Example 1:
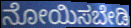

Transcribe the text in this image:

ನೋಯಿಸಬೇಡಿ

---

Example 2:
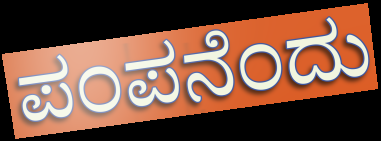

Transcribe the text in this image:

ಪಂಪನೆಂದು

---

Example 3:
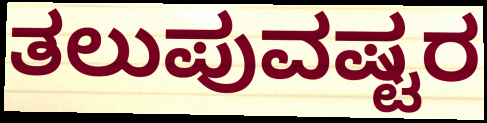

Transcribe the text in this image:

ತಲುಪುವಷ್ಟರ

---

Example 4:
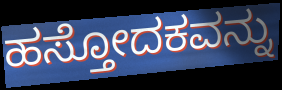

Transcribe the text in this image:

ಹಸ್ತೋದಕವನ್ನು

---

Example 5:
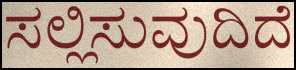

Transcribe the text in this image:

ಸಲ್ಲಿಸುವುದಿದೆ